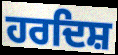
ਹਰਦਿਸ਼